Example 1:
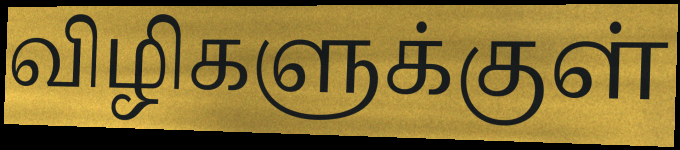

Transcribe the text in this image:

விழிகளுக்குள்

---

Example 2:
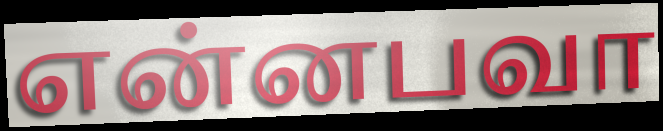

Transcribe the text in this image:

என்னபவா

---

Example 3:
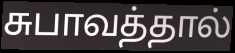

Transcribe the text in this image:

சுபாவத்தால்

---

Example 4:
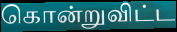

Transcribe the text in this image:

கொன்றுவிட்ட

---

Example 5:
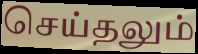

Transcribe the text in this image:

செய்தலும்